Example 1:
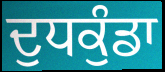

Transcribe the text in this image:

ਦੁਧਕੁੰਡਾ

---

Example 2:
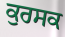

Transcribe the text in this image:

ਕੁਰਸਕ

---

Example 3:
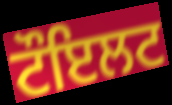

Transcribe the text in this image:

ਟੌਇਲਟ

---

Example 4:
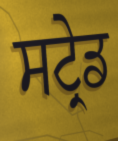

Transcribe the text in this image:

ਸਟ੍ਰੇਡ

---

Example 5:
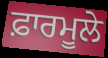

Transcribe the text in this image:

ਫ਼ਾਰਮੂਲੇ